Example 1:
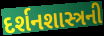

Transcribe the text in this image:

દર્શનશાસ્ત્રની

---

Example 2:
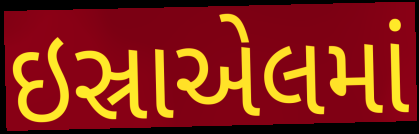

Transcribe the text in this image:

ઇસ્રાએલમાં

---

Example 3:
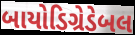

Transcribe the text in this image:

બાયોડિગ્રેડેબલ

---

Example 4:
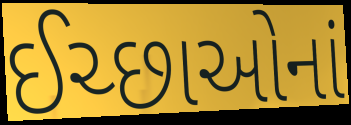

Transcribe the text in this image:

ઈચ્છાઓનાં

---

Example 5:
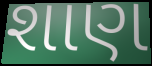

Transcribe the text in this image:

શાણ